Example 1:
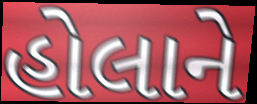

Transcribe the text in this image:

હોલાને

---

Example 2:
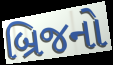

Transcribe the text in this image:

બ્રિજનો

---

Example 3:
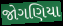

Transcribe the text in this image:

જોગણિયા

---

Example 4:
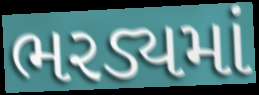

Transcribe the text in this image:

ભરડ્યમાં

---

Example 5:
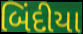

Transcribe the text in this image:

બિંદીયા